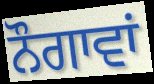
ਨੌਗਾਵਾਂ